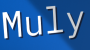
Muly